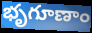
భృగూణాం